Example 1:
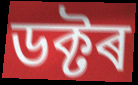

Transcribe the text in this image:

ডক্টৰ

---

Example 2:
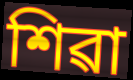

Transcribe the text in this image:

শিৱা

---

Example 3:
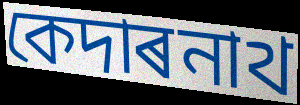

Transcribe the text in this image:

কেদাৰনাথ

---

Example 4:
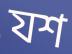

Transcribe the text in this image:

যশ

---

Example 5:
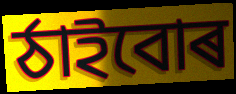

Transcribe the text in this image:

ঠাইবোৰ